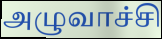
அழுவாச்சி